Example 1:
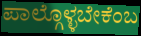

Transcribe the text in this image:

ಪಾಲ್ಗೊಳ್ಳಬೇಕೆಂಬ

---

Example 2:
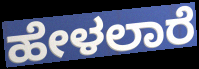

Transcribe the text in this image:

ಹೇಳಲಾರೆ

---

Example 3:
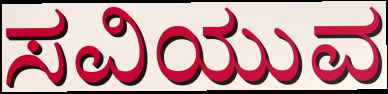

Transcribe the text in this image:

ಸವಿಯುವ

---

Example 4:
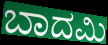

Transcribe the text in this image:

ಬಾದಮಿ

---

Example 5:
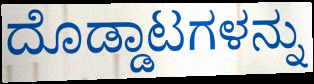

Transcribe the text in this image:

ದೊಡ್ಡಾಟಗಳನ್ನು